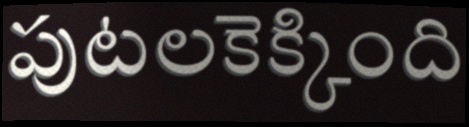
పుటలకెక్కింది